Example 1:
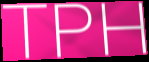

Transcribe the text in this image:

TPH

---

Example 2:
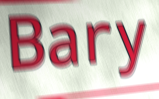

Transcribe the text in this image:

Bary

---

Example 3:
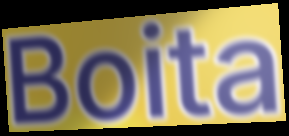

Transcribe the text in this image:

Boita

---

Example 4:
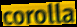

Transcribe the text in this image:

corolla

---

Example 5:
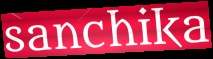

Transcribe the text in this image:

sanchika